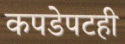
कपडेपटही